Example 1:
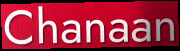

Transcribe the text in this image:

Chanaan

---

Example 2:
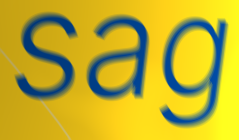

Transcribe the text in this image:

sag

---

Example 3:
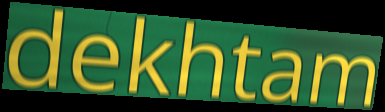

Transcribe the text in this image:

dekhtam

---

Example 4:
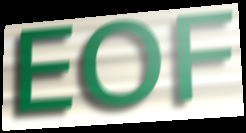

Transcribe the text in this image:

EOF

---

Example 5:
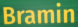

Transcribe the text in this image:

Bramin